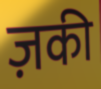
ज़की